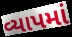
વ્યાપમાં